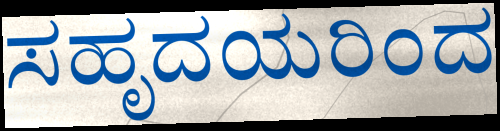
ಸಹೃದಯರಿಂದ